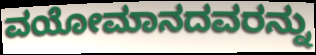
ವಯೋಮಾನದವರನ್ನು